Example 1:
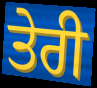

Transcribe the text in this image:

ਤੇਰੀ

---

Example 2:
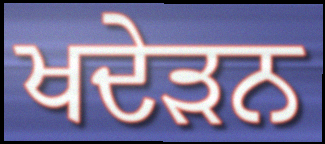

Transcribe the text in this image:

ਖਦੇੜਨ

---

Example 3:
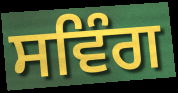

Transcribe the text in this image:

ਸਵਿੰਗ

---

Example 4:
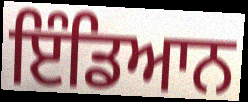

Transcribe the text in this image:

ਇੰਡਿਆਨ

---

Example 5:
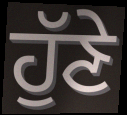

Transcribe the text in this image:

ਹੁੱਣੇ